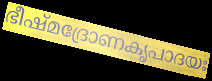
ഭീഷ്മദ്രോണകൃപാദയഃ